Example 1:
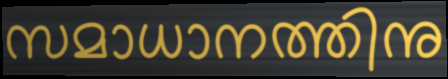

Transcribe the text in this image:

സമാധാനത്തിനു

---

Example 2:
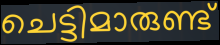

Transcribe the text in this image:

ചെട്ടിമാരുണ്ട്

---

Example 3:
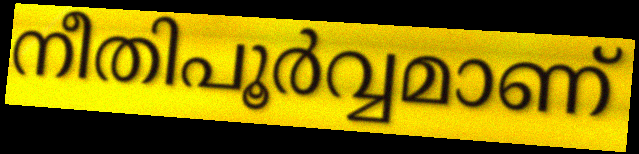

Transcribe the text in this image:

നീതിപൂർവ്വമാണ്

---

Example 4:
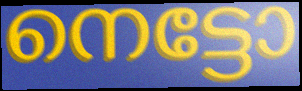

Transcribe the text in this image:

നെട്ടോ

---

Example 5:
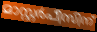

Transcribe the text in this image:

മാസ്റ്റർപീസിന്